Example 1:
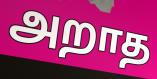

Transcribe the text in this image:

அறாத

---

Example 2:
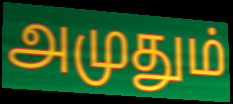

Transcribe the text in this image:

அமுதும்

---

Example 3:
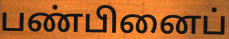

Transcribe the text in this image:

பண்பினைப்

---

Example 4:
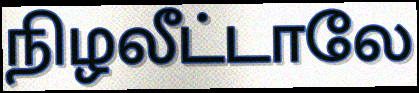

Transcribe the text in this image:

நிழலீட்டாலே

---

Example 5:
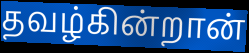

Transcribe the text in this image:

தவழ்கின்றான்